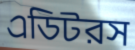
এডিটরস